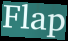
Flap